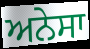
ਅਨੇਸਾ